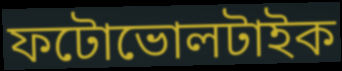
ফটোভোলটাইক